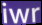
iwr